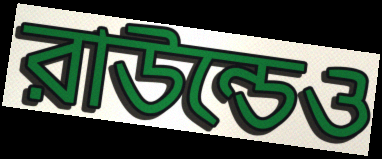
রাউন্ডেও